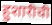
हुशारीची